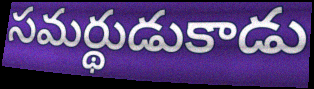
సమర్థుడుకాడు